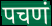
पचणं